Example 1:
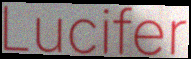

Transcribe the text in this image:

Lucifer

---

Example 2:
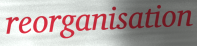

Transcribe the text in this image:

reorganisation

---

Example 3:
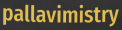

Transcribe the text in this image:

pallavimistry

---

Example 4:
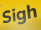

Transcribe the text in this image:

Sigh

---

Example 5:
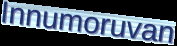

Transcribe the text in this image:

Innumoruvan